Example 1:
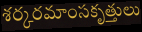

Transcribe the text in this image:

శర్కరమాంసకృత్తులు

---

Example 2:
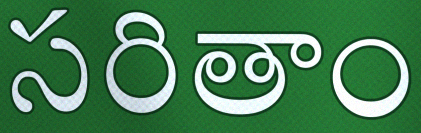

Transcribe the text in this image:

సరితాం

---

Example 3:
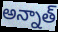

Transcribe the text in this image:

అన్నాత్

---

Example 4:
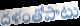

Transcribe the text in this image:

దళంతోపాటు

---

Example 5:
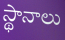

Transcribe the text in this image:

స్థానాలు